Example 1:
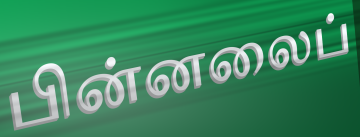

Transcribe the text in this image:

பின்னலைப்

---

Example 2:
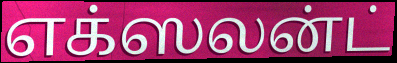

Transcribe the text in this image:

எக்ஸலன்ட்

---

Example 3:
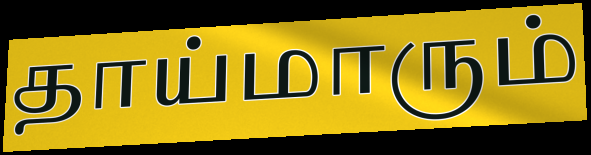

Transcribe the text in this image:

தாய்மாரும்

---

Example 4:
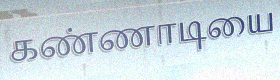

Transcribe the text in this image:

கண்ணாடியை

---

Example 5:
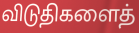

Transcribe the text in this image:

விடுதிகளைத்